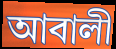
আবালী